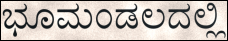
ಭೂಮಂಡಲದಲ್ಲಿ